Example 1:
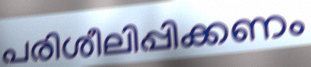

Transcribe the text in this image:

പരിശീലിപ്പിക്കണം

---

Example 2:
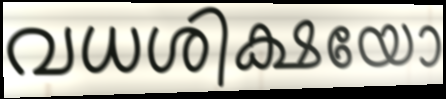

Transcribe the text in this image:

വധശിക്ഷയോ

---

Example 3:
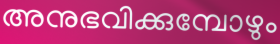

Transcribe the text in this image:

അനുഭവിക്കുമ്പോഴും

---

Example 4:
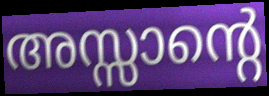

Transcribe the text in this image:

അസ്സാന്റെ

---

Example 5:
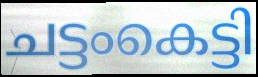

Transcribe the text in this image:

ചട്ടംകെട്ടി